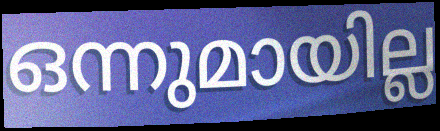
ഒന്നുമായില്ല